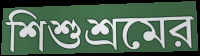
শিশুশ্রমের